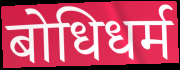
बोधिधर्म